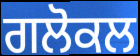
ਗਲੋਕਲ